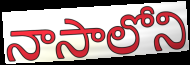
నాసాలోని